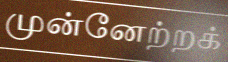
முன்னேற்றக்